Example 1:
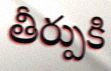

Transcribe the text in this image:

తీర్పుకి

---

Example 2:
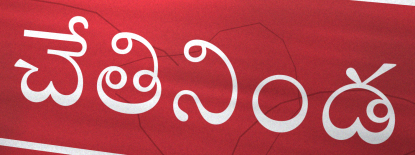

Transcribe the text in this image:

చేతినిండ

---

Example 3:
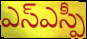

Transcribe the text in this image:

ఎస్ఎస్పీ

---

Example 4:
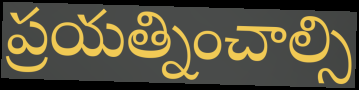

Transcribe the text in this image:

ప్రయత్నించాల్సి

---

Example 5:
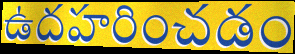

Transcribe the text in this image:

ఉదహరించడం